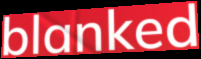
blanked